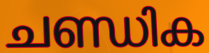
ചണ്ഡിക